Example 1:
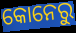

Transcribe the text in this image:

କୋନେରୁ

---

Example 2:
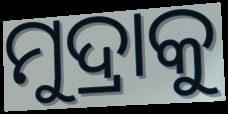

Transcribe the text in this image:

ମୁଦ୍ରାକୁ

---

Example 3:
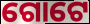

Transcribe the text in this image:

ଗୋଟେ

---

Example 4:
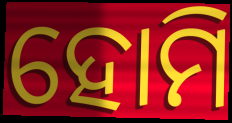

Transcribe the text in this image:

ହୋମି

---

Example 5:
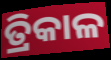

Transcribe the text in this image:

ତ୍ରିକାଳ